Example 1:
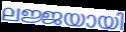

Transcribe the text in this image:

ലജ്ജയായി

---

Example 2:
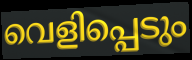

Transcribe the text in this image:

വെളിപ്പെടും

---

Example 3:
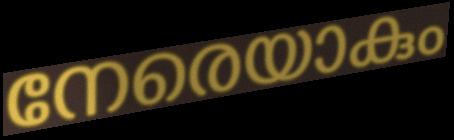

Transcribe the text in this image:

നേരെയാകും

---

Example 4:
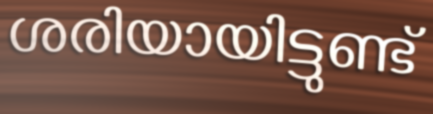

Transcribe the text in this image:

ശരിയായിട്ടുണ്ട്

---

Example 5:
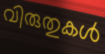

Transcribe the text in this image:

വിരുതുകൾ